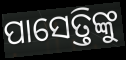
ପାସେତ୍ତିଙ୍କୁ